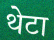
थेटा